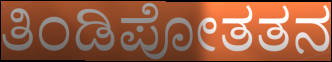
ತಿಂಡಿಪೋತತನ